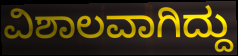
ವಿಶಾಲವಾಗಿದ್ದು